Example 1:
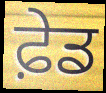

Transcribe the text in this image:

ਫ਼ੇਡ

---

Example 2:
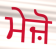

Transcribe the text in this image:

ਮੇਜ਼ੋ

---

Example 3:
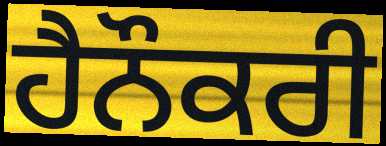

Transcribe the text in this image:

ਹੈਨੌਕਰੀ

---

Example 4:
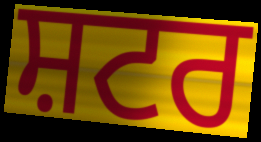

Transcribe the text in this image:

ਸ਼ਟਰ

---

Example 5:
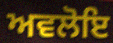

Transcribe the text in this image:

ਅਵਲੋਇ